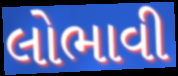
લોભાવી